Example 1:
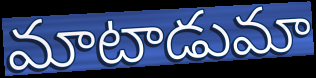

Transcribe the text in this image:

మాటాడుమా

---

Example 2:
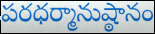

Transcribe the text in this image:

పరధర్మానుష్ఠానం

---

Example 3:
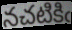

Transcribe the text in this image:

నచటికిఁ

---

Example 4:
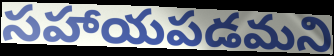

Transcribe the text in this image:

సహాయపడమని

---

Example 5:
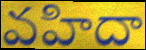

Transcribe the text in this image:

వహిదా